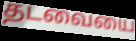
தடவையை